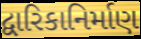
દ્વારિકાનિર્માણ